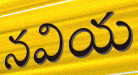
నవియ